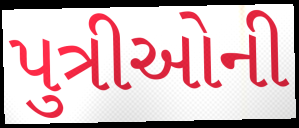
પુત્રીઓની